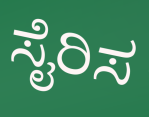
ಸೈರಿಸ